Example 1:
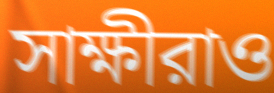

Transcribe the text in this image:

সাক্ষীরাও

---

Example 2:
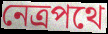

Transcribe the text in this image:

নেত্রপথে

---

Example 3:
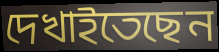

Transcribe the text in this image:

দেখাইতেছেন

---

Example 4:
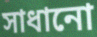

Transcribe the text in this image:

সাধানো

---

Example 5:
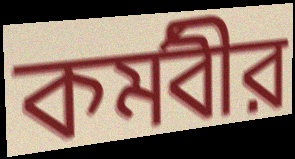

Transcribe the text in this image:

কর্মবীর